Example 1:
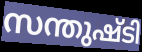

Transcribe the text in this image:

സന്തുഷ്ടി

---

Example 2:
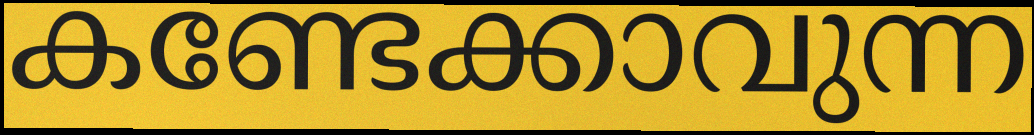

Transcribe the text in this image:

കണ്ടേക്കാവുന്ന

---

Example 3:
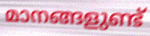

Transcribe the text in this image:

മാനങ്ങളുണ്ട്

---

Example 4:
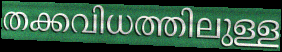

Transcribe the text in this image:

തക്കവിധത്തിലുള്ള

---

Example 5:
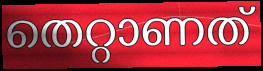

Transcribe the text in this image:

തെറ്റാണത്